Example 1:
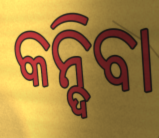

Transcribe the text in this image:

କନ୍ଦିବା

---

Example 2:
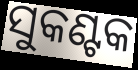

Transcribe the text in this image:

ସୁକଣ୍ଟକ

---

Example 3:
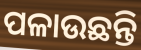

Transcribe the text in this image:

ପଳାଉଛନ୍ତି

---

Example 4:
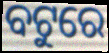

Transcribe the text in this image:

ବଟୁରେ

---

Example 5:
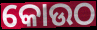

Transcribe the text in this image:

କୋଉଠ